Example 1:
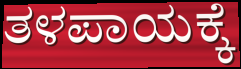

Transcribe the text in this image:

ತಳಪಾಯಕ್ಕೆ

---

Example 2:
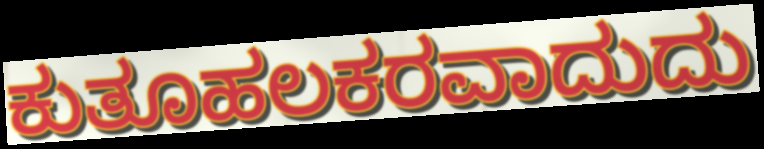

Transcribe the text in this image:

ಕುತೂಹಲಕರವಾದುದು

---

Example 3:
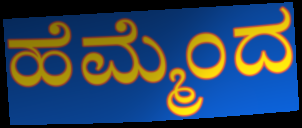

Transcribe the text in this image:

ಹೆಮ್ಮೆಂದ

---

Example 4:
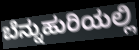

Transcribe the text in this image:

ಬೆನ್ನುಹುರಿಯಲ್ಲಿ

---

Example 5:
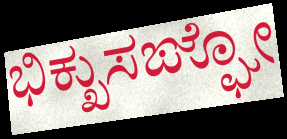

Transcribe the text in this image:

ಭಿಕ್ಖುಸಙ್ಘೋ